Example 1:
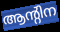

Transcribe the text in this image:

ആന്റിന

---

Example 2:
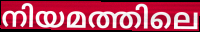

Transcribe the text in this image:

നിയമത്തിലെ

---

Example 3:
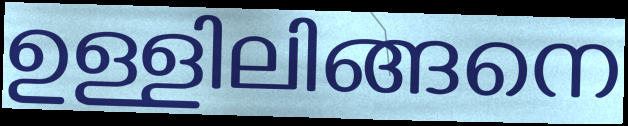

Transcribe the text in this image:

ഉള്ളിലിങ്ങനെ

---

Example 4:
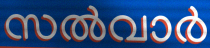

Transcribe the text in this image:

സൽവാർ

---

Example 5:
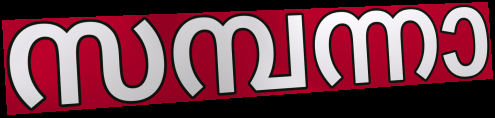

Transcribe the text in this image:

സമ്പന്നാ